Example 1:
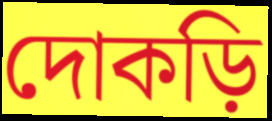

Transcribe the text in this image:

দোকড়ি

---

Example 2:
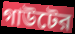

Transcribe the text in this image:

গাউটের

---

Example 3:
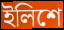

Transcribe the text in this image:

ইলিশে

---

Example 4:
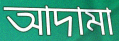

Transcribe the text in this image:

আদামা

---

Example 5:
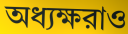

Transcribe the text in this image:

অধ্যক্ষরাও